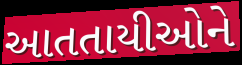
આતતાયીઓને